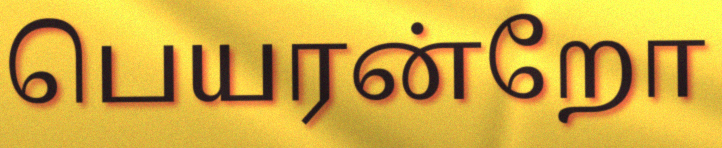
பெயரன்றோ